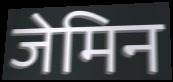
जेमिन